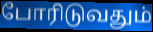
போரிடுவதும்